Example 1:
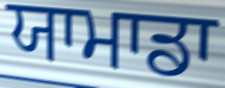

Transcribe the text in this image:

ਯਾਮਾਡਾ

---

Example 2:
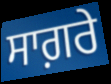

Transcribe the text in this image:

ਸਾਗ਼ਰੇ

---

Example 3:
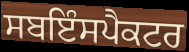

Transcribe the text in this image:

ਸਬਇੰਸਪੈਕਟਰ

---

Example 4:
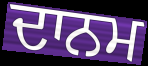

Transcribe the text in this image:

ਦਾਨਮ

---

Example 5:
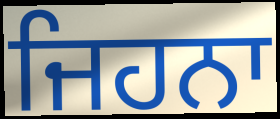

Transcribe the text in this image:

ਜਿਹਨਾ